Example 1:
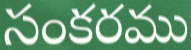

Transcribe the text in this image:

సంకరము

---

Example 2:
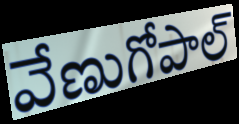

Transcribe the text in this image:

వేణుగోపాల్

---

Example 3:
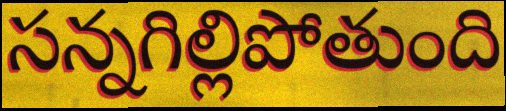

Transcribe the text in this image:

సన్నగిల్లిపోతుంది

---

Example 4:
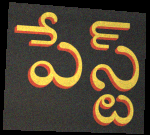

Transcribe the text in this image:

పేస్ట్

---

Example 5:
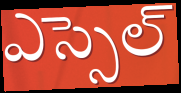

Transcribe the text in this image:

ఎస్సెల్